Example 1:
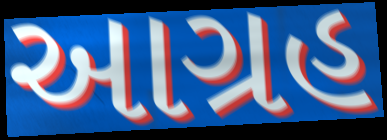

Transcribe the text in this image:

આગ્રહ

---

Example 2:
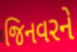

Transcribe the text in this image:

જિનવરને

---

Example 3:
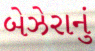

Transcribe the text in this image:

બેઝેરાનું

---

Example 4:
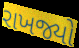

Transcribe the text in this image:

રાખજ્યો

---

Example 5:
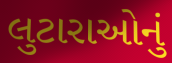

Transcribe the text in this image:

લુટારાઓનું